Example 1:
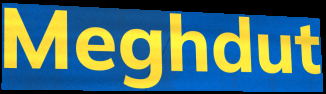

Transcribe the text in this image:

Meghdut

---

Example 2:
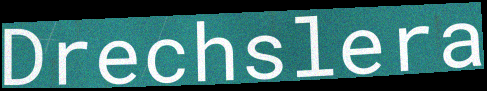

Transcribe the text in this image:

Drechslera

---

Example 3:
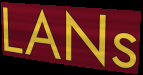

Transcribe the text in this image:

LANs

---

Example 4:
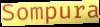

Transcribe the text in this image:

Sompura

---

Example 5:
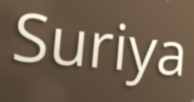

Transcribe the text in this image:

Suriya